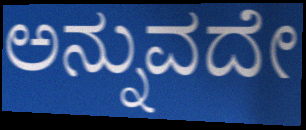
ಅನ್ನುವದೇ